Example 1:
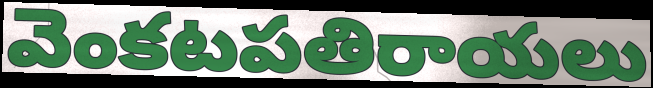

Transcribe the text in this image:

వెంకటపతిరాయలు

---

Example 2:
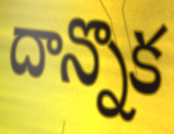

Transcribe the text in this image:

దాన్నొక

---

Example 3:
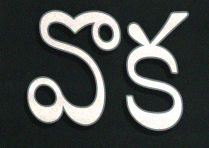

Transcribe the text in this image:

వొక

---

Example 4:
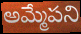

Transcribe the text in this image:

అమ్మేపని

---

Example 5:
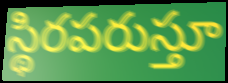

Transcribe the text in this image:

స్థిరపరుస్తూ